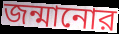
জন্মানোর